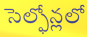
సెల్ఫోన్లలో